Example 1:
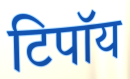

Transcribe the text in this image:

टिपॉय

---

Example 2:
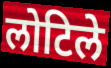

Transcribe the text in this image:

लोटिले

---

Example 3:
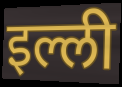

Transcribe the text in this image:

इल्ली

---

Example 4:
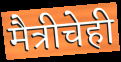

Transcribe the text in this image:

मैत्रीचेही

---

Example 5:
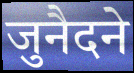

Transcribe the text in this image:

जुनैदने